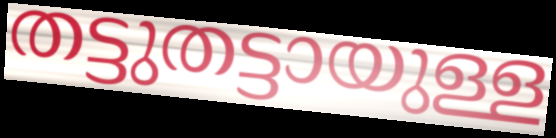
തട്ടുതട്ടായുള്ള